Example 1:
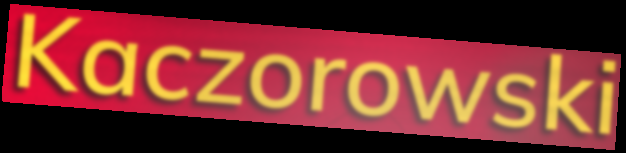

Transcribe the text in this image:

Kaczorowski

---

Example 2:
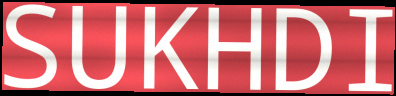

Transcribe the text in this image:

SUKHDI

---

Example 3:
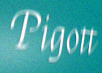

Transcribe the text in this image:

Pigott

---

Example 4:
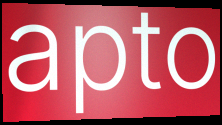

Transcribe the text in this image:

apto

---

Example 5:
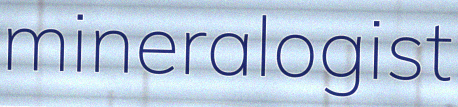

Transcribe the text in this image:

mineralogist